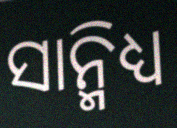
ସାନ୍ମିଧ୍ୟ